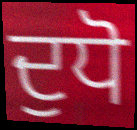
ਦੁਧੋ